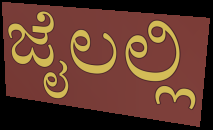
ಜೈಲಲ್ಲಿ